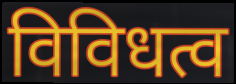
विविधत्व